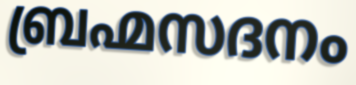
ബ്രഹ്മസദനം